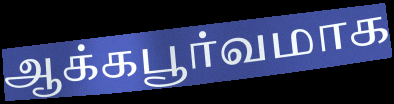
ஆக்கபூர்வமாக